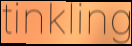
tinkling